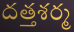
దత్తశర్మ